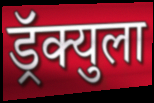
ड्रॅक्युला